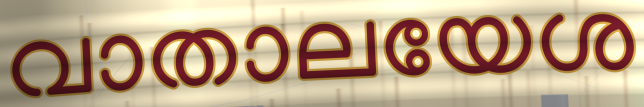
വാതാലയേശ